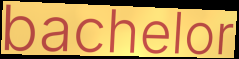
bachelor